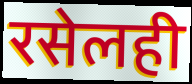
रसेलही